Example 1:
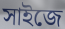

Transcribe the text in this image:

সাইজে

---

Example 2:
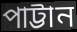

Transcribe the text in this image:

পাট্টান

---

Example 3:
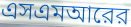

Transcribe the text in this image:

এসএমআরের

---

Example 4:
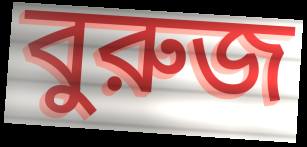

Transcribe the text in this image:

বুরুজ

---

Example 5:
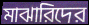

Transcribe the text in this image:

মাঝারিদের